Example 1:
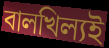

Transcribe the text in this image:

বালখিল্যই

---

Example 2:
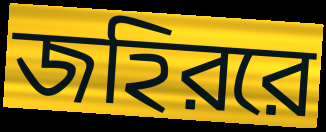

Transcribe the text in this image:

জহিররে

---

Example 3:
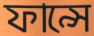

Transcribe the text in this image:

ফান্সে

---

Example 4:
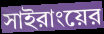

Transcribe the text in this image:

সাইরাংয়ের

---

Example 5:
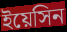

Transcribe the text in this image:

ইয়েসিন